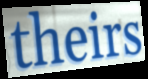
theirs